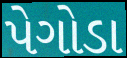
પેગોડા